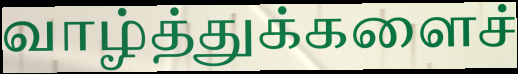
வாழ்த்துக்களைச்